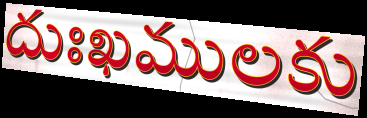
దుఃఖములకు